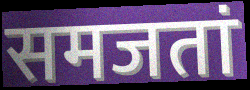
समजतां